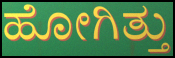
ಹೋಗಿತ್ತು